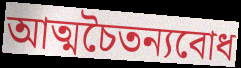
আত্মচৈতন্যবোধ